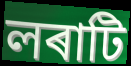
লৰাটি